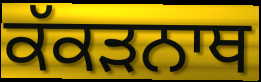
ਕੱਕੜਨਾਥ